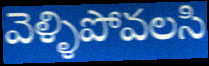
వెళ్ళిపోవలసి